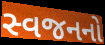
સ્વજનનો